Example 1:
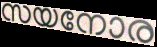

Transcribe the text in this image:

സയനോര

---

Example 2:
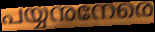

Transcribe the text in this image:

പയ്യനുനേരെ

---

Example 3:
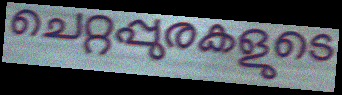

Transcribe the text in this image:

ചെറ്റപ്പുരകളുടെ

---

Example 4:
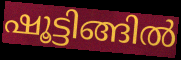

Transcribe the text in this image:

ഷൂട്ടിങ്ങിൽ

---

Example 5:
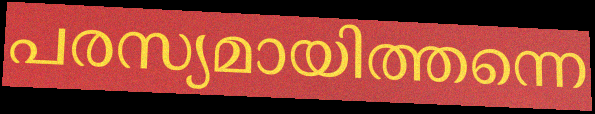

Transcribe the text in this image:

പരസ്യമായിത്തന്നെ